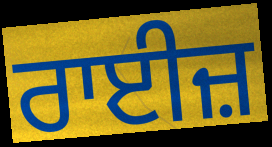
ਰਾਈਜ਼